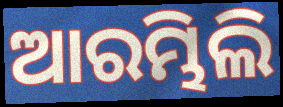
ଆରମ୍ଭିଲି